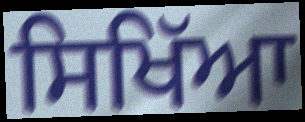
ਸਿਖਿੱਆ